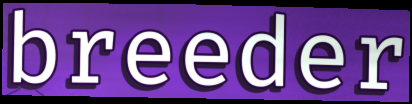
breeder